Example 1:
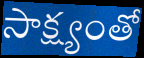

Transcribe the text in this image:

సాక్ష్యంతో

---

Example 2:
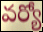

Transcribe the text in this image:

వర్యో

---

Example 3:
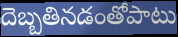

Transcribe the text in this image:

దెబ్బతినడంతోపాటు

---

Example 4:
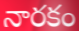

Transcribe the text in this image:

నారకం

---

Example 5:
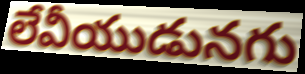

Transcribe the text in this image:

లేవీయుడునగు